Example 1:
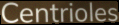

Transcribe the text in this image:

Centrioles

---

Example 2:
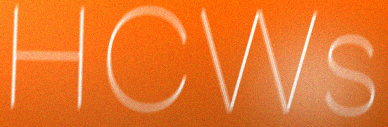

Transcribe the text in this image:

HCWs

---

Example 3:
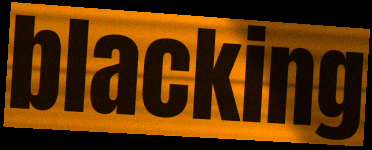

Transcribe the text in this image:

blacking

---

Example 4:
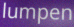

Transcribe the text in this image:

lumpen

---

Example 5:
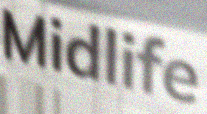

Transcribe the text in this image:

Midlife